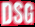
DSG